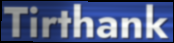
Tirthank